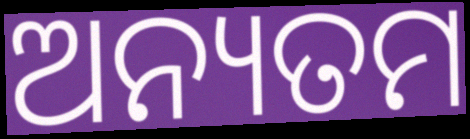
ଅନ୍ୟତମ